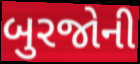
બુરજોની